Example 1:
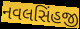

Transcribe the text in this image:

નવલસિંહજી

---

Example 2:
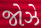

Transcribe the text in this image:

જોઝે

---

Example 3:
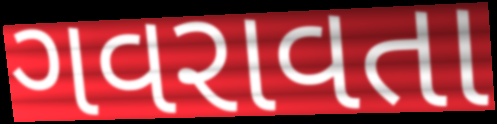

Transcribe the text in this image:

ગવરાવતા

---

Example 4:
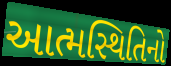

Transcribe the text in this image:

આત્મસ્થિતિનો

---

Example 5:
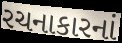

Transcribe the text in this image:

રચનાકારનાં